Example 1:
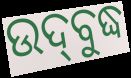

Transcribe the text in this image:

ଉଦ୍‌ବୁଦ୍ଧ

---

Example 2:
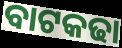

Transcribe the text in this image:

ବାଟକଢା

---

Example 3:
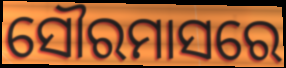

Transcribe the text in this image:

ସୌରମାସରେ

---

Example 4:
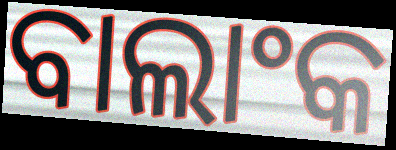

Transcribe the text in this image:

ବାଲାଂକ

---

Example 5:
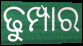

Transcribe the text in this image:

ଢୁମ୍ପାର